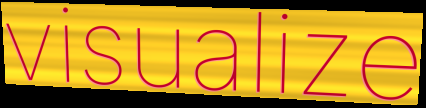
visualize